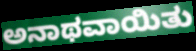
ಅನಾಥವಾಯಿತು